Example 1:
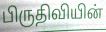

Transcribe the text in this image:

பிருதிவியின்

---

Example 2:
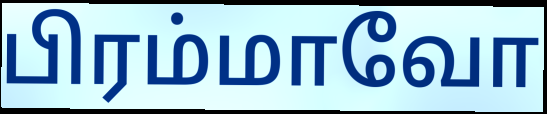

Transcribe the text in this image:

பிரம்மாவோ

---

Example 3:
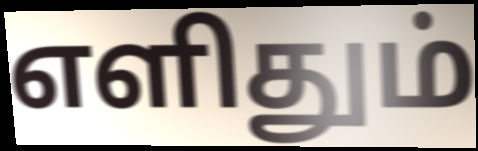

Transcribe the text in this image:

எளிதும்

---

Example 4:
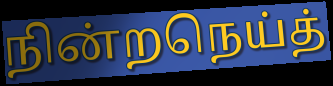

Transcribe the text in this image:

நின்றநெய்த்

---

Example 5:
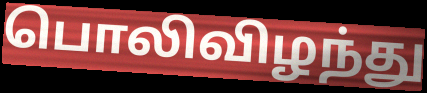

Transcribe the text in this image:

பொலிவிழந்து